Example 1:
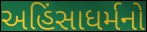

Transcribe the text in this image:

અહિંસાધર્મનો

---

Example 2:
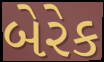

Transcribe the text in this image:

બેરેક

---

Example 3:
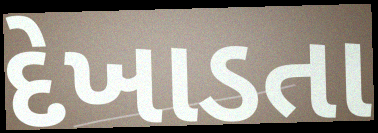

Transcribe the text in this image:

દેખાડતા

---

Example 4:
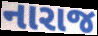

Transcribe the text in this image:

નારાજ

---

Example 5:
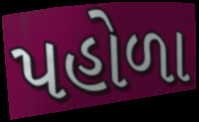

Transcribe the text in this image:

પહોળા